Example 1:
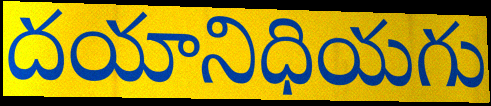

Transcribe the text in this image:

దయానిధియగు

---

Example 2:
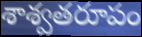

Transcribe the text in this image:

శాశ్వతరూపం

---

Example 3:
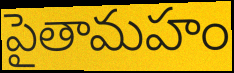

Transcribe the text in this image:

పైతామహం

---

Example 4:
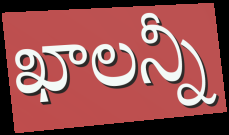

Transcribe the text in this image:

ఖాలన్నీ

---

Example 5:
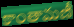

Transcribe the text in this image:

కాంతామణీ